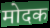
मोदक